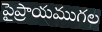
పైప్రాయముగల